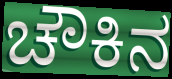
ಚೌಕಿನ